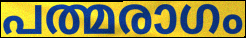
പത്മരാഗം